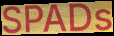
SPADs